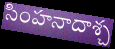
సింహనాదాశ్చ